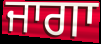
ਜਾਗਾ